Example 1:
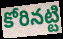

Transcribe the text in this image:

కోరినట్టి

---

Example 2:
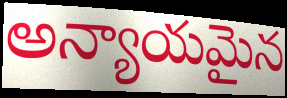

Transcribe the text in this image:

అన్యాయమైన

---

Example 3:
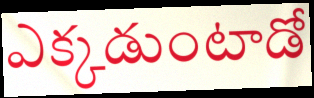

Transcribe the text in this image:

ఎక్కడుంటాడో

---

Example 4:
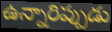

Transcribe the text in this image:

ఉన్నారిప్పుడు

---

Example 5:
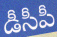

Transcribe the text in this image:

డీసీపీ